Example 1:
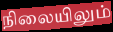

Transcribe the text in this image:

நிலையிலும்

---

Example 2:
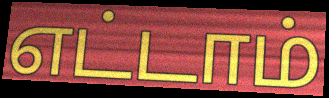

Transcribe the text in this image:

எட்டாம்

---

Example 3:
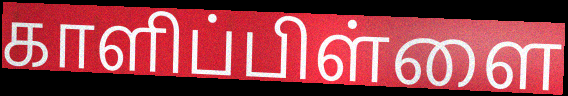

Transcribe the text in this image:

காளிப்பிள்ளை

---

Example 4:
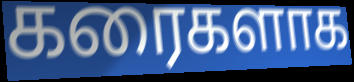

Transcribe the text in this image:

கரைகளாக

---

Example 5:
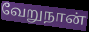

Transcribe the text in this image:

வேறுநான்